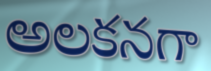
అలకనగా